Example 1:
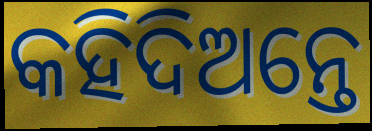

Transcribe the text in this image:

କହିଦିଅନ୍ତେ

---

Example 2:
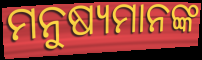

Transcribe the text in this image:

ମନୁଷ୍ୟମାନଙ୍କ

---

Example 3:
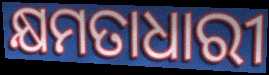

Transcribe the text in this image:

କ୍ଷମତାଧାରୀ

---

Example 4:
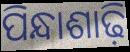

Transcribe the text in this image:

ପିନ୍ଧାଶାଢ଼ି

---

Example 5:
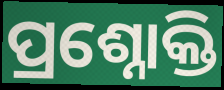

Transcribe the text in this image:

ପ୍ରଶ୍ନୋକ୍ତି